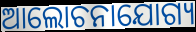
ଆଲୋଚନାଯୋଗ୍ୟ